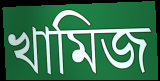
খামিজ